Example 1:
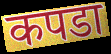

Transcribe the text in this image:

कपडा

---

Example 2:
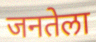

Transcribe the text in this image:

जनतेला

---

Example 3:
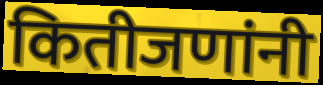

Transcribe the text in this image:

कितीजणांनी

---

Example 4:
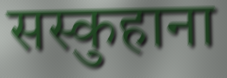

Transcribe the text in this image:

सस्कुहाना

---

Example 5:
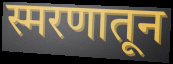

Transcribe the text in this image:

स्मरणातून